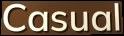
Casual